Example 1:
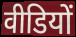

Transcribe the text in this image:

वीडियों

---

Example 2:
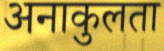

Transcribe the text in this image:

अनाकुलता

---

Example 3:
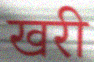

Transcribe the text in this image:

खरी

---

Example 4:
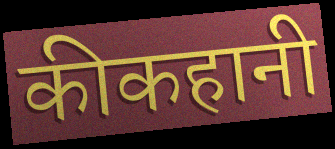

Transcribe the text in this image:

कीकहानी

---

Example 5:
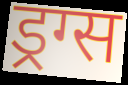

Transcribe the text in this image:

ड्रग्स